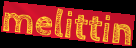
melittin